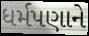
ધર્મપણાને